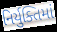
નિર્યુક્તિમાં